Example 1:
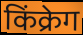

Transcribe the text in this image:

किंक्रेग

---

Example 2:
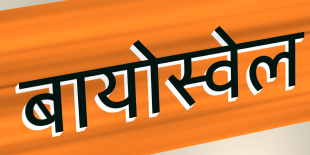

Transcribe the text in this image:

बायोस्वेल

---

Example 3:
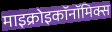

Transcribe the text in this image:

माइक्रोइकॉनॉमिक्स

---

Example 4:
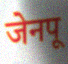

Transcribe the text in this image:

जेनपू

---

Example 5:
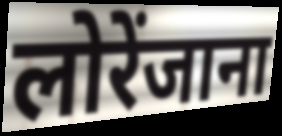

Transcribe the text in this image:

लोरेंजाना